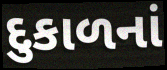
દુકાળનાં